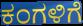
ಕಂಗಳಿಗೆ